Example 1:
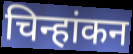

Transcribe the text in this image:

चिन्हांकन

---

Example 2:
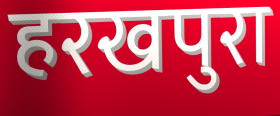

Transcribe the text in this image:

हरखपुरा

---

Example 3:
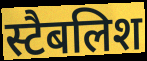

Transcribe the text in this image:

स्टैबलिश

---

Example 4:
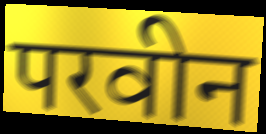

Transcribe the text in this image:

परवीन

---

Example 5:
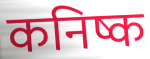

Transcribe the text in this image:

कनिष्क